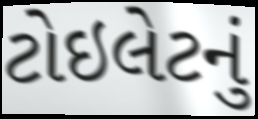
ટોઇલેટનું